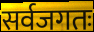
सर्वजगतः